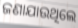
ଜଣାଯାଉଥିଲେ